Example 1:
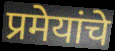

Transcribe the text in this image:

प्रमेयांचे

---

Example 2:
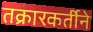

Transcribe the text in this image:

तक्रारकर्तीने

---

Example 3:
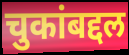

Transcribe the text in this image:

चुकांबद्दल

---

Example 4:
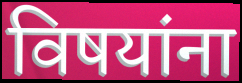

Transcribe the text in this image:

विषयांना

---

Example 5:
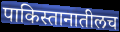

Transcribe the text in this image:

पाकिस्तानातीलच